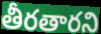
తీరతారని